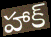
హాక్